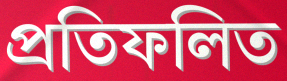
প্ৰতিফলিত